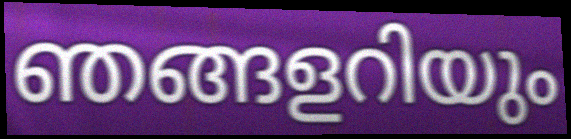
ഞങ്ങളറിയും